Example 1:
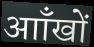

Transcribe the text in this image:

आाँखों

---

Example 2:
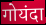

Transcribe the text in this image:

गोयंदा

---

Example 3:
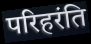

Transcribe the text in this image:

परिहरंति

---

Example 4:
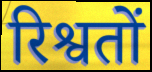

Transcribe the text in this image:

रिश्वतों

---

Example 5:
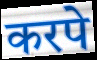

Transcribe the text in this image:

करपे